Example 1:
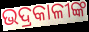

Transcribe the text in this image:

ଭଦ୍ରକାଳୀଙ୍କ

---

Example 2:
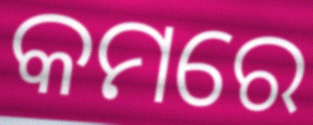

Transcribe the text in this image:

କମରେ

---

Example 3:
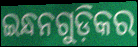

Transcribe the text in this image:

ଇନ୍ଧନଗୁଡ଼ିକର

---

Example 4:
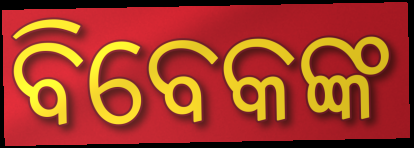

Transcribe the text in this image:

ବିବେକଙ୍କ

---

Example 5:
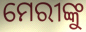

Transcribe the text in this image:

ମେରୀଙ୍କୁ